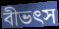
বীভৎস